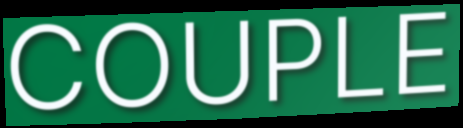
COUPLE